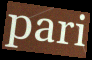
pari